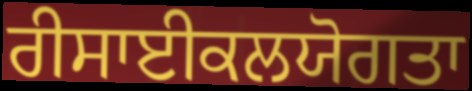
ਰੀਸਾਈਕਲਯੋਗਤਾ